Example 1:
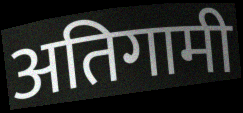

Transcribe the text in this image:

अतिगामी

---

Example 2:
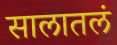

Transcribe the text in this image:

सालातलं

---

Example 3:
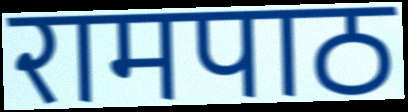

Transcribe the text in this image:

रामपाठ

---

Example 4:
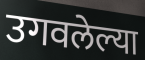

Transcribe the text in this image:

उगवलेल्या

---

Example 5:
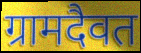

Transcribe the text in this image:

ग्रामदैवत